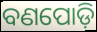
ବଣପୋଡ଼ି